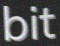
bit